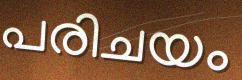
പരിചയം